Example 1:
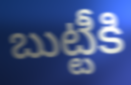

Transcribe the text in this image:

బుట్టీకి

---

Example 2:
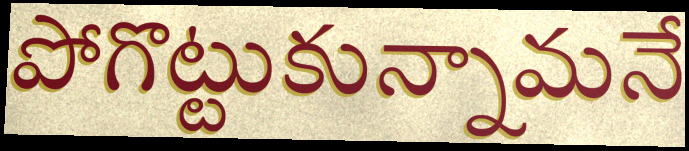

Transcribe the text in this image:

పోగొట్టుకున్నామనే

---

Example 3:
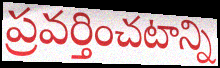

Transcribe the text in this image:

ప్రవర్తించటాన్ని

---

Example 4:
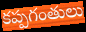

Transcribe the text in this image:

కప్పగంతులు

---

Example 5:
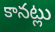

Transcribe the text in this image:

కానట్లు